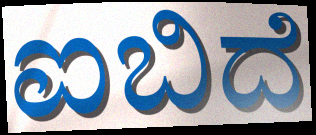
ಐಬಿದೆ